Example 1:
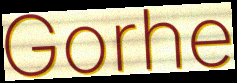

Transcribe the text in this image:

Gorhe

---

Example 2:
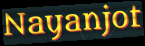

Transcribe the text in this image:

Nayanjot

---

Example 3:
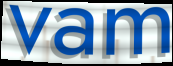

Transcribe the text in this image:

vam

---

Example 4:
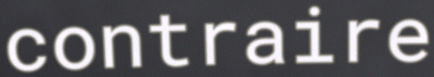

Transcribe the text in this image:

contraire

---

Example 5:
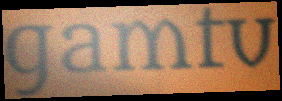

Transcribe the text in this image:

gamtu